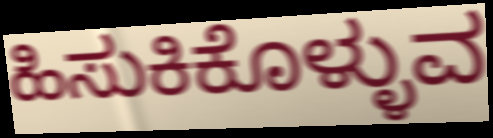
ಹಿಸುಕಿಕೊಳ್ಳುವ